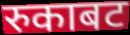
रुकाबट